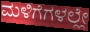
ಮಳಿಗೆಗಳಲ್ಲೇ